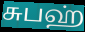
சுபஹ்